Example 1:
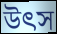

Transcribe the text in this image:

উত্‍স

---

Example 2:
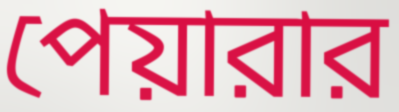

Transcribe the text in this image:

পেয়ারার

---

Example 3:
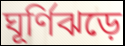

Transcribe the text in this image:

ঘূর্ণিঝড়ে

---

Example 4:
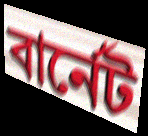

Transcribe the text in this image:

বার্নেট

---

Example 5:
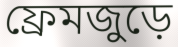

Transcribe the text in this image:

ফ্রেমজুড়ে